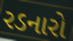
રડનારો